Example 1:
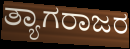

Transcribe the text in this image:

ತ್ಯಾಗರಾಜರ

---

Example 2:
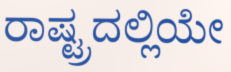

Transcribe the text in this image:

ರಾಷ್ಟ್ರದಲ್ಲಿಯೇ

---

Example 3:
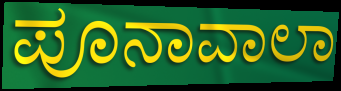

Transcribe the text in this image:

ಪೂನಾವಾಲಾ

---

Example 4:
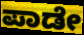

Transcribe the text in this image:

ಪಾಡೇ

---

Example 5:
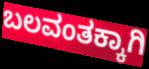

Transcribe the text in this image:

ಬಲವಂತಕ್ಕಾಗಿ